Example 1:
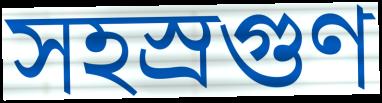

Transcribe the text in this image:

সহস্রগুণ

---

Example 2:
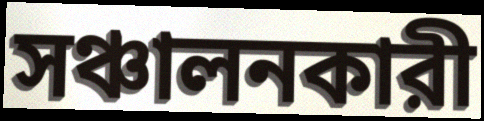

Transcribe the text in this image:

সঞ্চালনকারী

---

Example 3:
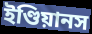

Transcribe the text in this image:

ইণ্ডিয়ানস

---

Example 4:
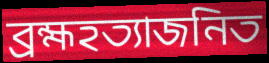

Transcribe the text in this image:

ব্রহ্মহত্যাজনিত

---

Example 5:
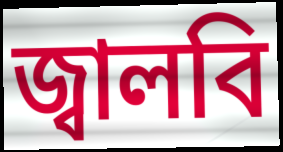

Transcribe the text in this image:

জ্বালবি